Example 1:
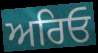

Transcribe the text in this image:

ਅਰਿਓ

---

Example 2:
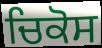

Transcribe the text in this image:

ਚਿਕੋਸ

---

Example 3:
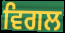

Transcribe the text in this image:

ਵਿਗਲ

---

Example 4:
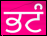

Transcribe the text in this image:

ਭਟੰ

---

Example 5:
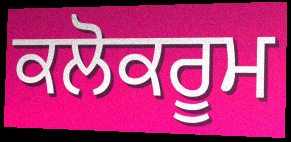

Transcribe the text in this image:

ਕਲੋਕਰੂਮ